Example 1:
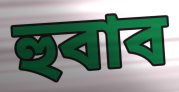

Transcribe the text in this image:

হুবাব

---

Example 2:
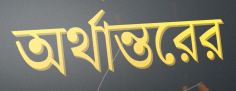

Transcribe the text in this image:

অর্থান্তরের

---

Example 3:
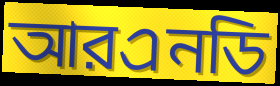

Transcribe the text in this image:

আরএনডি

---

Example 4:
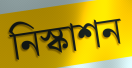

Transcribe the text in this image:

নিস্কাশন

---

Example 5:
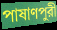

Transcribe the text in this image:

পাষাণপুরী